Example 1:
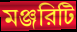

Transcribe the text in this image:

মঞ্জরিটি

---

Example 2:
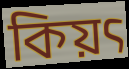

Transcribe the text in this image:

কিয়ৎ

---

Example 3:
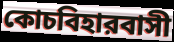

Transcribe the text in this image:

কোচবিহারবাসী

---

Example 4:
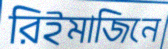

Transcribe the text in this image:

রিইমাজিনে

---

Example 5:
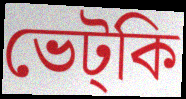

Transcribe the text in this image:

ভেট্কি